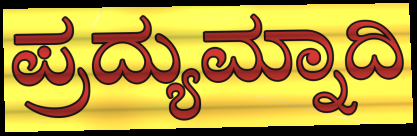
ಪ್ರದ್ಯುಮ್ನಾದಿ